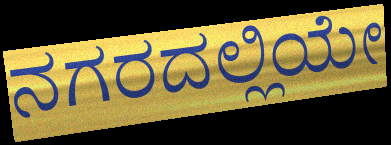
ನಗರದಲ್ಲಿಯೇ